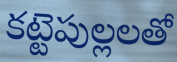
కట్టెపుల్లలతో